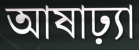
আষাঢ়্যা